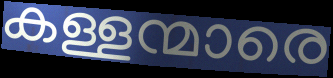
കള്ളന്മാരെ